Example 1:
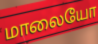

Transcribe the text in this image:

மாலையோ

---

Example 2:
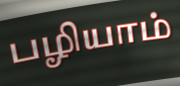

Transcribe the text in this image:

பழியாம்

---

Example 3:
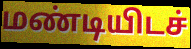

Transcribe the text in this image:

மண்டியிடச்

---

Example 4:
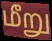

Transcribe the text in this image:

மீறு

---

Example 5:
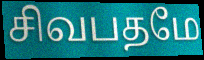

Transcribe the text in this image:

சிவபதமே